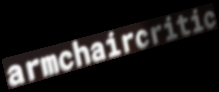
armchaircritic